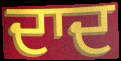
ਦਾਦ